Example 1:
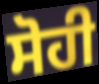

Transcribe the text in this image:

ਸੋਹੀ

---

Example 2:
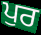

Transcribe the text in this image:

ਪੁਰ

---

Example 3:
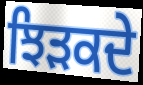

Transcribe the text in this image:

ਝਿੜਕਦੇ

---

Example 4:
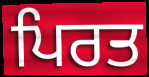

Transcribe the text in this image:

ਪਿਰਤ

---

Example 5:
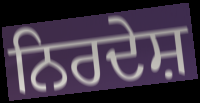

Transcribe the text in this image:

ਨਿਰਦੇਸ਼